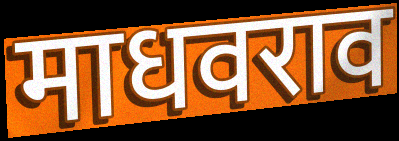
माधवराव